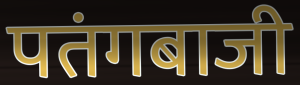
पतंगबाजी